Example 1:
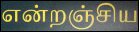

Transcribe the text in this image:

என்றஞ்சிய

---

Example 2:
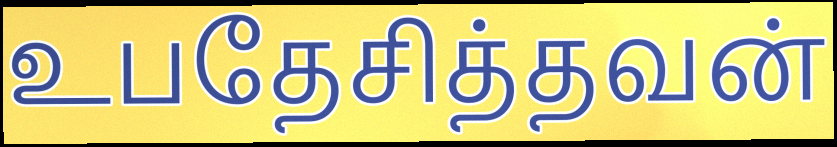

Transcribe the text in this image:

உபதேசித்தவன்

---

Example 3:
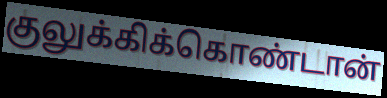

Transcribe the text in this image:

குலுக்கிக்கொண்டான்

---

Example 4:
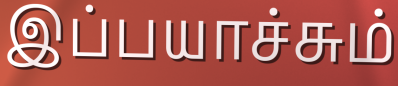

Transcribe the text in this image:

இப்பயாச்சும்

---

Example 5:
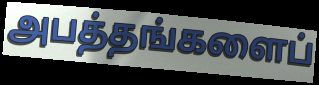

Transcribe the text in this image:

அபத்தங்களைப்